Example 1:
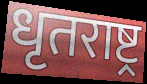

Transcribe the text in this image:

धृतराष्ट्र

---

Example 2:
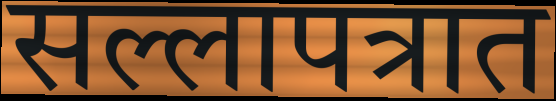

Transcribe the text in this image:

सल्लापत्रात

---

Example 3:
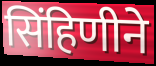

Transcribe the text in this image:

सिंहिणीने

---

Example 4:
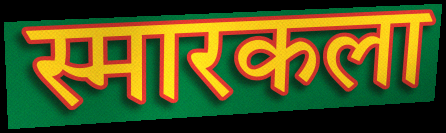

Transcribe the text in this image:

स्मारकला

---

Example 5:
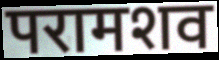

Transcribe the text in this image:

परामशव